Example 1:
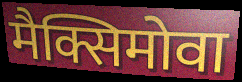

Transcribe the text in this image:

मैक्सिमोवा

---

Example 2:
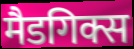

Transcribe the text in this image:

मैडगिक्स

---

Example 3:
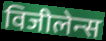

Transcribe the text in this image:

विजीलेन्स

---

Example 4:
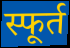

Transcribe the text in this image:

स्फूर्त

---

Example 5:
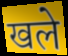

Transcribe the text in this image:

खले